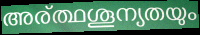
അര്ത്ഥശൂന്യതയും